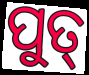
ପୁତ୍